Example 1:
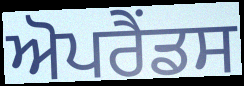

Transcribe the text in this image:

ਅੋਪਰੈਂਡਸ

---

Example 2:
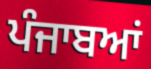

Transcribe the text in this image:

ਪੰਜਾਬਆਂ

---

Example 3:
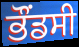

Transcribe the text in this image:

ਭੌਂਡਸੀ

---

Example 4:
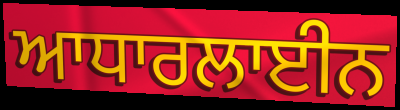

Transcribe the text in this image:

ਆਧਾਰਲਾਈਨ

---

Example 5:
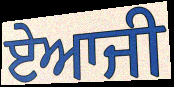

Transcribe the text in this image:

ਏਆਜੀ